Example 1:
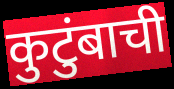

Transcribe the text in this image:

कुटुंबाची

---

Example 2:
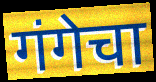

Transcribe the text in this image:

गंगेचा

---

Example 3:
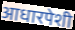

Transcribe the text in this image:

आधारपेशी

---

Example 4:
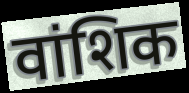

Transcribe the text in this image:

वांशिक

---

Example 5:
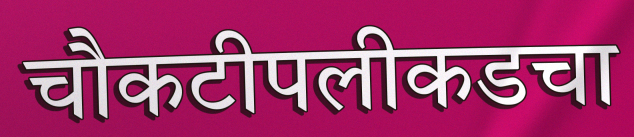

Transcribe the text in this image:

चौकटीपलीकडचा